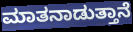
ಮಾತನಾಡುತ್ತಾನೆ